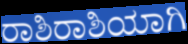
ರಾಶಿರಾಶಿಯಾಗಿ